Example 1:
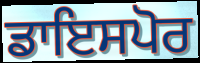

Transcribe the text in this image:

ਡਾਇਸਪੋਰ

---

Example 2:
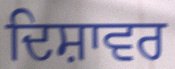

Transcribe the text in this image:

ਦਿਸ਼ਾਵਰ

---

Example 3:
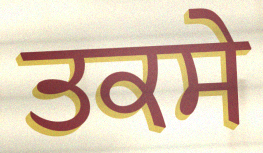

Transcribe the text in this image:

ਤਕਸੇ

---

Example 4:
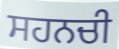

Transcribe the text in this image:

ਸਹਨਚੀ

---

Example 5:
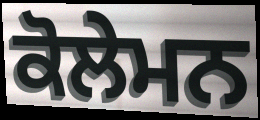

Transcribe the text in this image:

ਕੋਲੇਮਨ